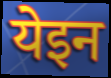
येइन